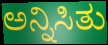
ಅನ್ನಿಸಿತು